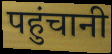
पहुंचानी